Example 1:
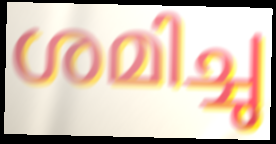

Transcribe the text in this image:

ശമിച്ചു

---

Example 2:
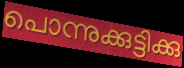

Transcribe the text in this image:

പൊന്നുക്കുട്ടിക്കു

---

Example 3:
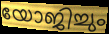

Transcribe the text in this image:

യോജിച്ചും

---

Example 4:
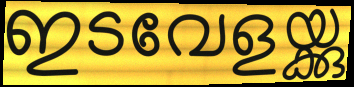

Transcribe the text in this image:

ഇടവേളയ്ക്കു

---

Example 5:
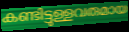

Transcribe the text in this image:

കണ്ടിട്ടുള്ളവരുമായ